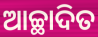
ଆଚ୍ଛାଦିତ